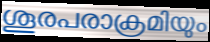
ശൂരപരാക്രമിയും